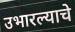
उभारल्याचे